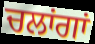
ਚਲਾਂਗਾਂ